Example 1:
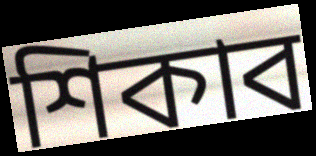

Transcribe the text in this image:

শিকাব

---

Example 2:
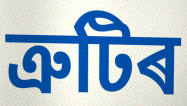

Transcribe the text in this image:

ত্ৰুটিৰ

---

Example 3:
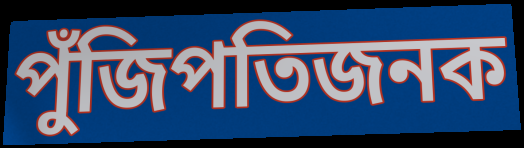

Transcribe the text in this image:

পুঁজিপতিজনক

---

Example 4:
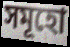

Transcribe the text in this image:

সমূহো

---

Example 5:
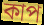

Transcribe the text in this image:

কাপ